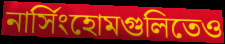
নার্সিংহোমগুলিতেও